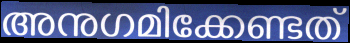
അനുഗമിക്കേണ്ടത്